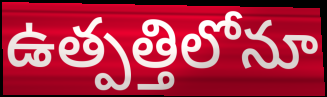
ఉత్పత్తిలోనూ